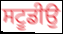
ਸਟੂਡੀਉ